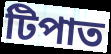
টিপাত